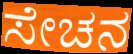
ಸೇಚನ